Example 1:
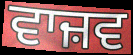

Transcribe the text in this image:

ਵਾਜ਼ਵ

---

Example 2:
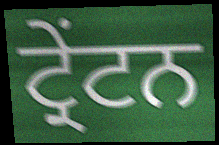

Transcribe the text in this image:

ਟ੍ਰੇਂਟਨ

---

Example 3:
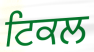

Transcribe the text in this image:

ਟਿਕਲ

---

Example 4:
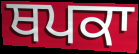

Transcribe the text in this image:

ਥਪਕਾ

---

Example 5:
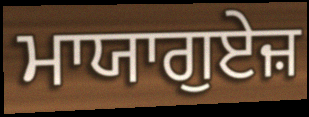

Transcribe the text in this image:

ਮਾਯਾਗੁਏਜ਼